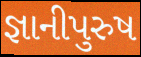
જ્ઞાનીપુરુષ